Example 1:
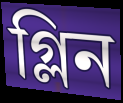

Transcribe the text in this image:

গ্লিন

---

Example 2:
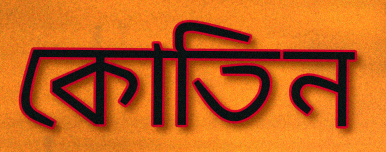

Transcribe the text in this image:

কোতিন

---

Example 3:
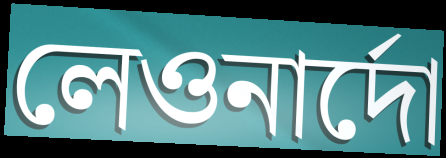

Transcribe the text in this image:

লেওনার্দো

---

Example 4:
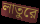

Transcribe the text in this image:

লাতুরে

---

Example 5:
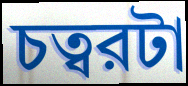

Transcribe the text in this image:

চত্বরটা